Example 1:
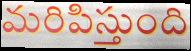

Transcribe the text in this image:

మరిపిస్తుంది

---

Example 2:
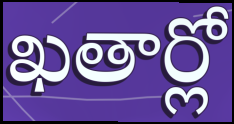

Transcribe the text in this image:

ఖతార్లో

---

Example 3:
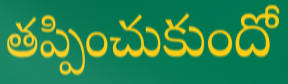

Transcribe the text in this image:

తప్పించుకుందో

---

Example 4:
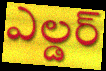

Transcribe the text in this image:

ఎల్డర్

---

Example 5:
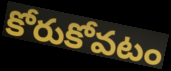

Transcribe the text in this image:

కోరుకోవటం